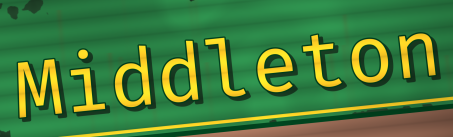
Middleton